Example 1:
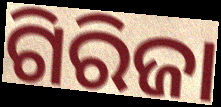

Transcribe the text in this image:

ଗିରିଜା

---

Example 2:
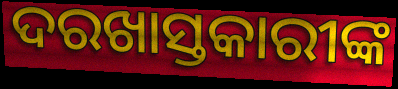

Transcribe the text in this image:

ଦରଖାସ୍ତକାରୀଙ୍କ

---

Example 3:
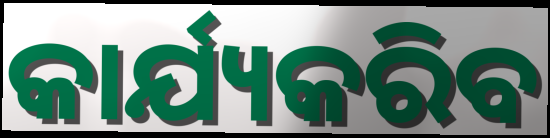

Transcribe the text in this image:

କାର୍ଯ୍ୟକରିବ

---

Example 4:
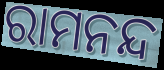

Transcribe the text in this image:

ରାମନନ୍ଦ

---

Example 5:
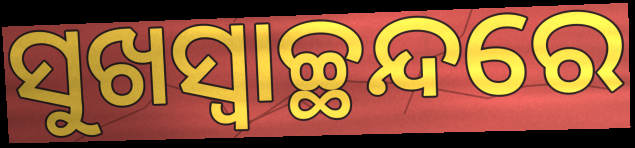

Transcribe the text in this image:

ସୁଖସ୍ୱାଚ୍ଛନ୍ଦରେ